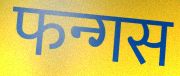
फन्गस